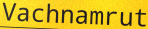
Vachnamrut